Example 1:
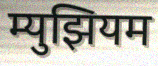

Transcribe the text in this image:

म्युझियम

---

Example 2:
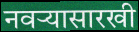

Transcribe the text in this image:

नवऱ्यासारखी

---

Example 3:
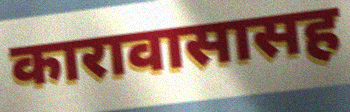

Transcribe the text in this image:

कारावासासह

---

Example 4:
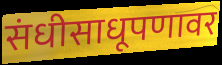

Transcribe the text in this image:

संधीसाधूपणावर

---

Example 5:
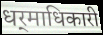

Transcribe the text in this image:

धर्माधिकारी